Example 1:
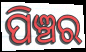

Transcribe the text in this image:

ପିଞ୍ଚର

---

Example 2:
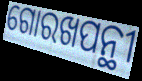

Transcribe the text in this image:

ଗୋରଖପନ୍ଥୀ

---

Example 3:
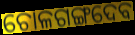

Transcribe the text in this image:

ଚୋଳଗଙ୍ଗଦେବ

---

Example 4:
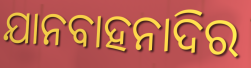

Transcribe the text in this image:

ଯାନବାହନାଦିର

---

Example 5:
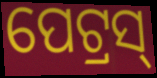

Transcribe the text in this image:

ପେଟ୍ରସ୍